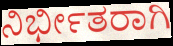
ನಿರ್ಭೀತರಾಗಿ